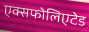
एक्सफोलिएटेड